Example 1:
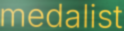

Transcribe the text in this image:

medalist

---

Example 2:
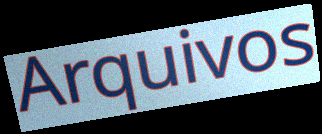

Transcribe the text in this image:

Arquivos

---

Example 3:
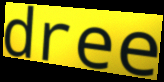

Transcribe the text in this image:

dree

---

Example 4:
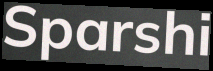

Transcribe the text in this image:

Sparshi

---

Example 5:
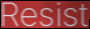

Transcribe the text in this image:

Resist